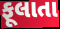
ફૂલાતા